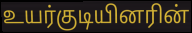
உயர்குடியினரின்